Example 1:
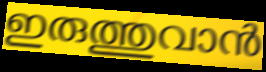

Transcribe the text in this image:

ഇരുത്തുവാൻ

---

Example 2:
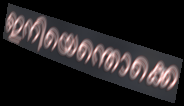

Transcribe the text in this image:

ഇനിയെന്തൊക്കെ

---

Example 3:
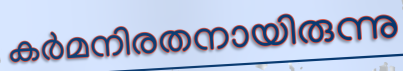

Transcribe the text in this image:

കർമനിരതനായിരുന്നു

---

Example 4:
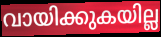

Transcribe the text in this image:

വായിക്കുകയില്ല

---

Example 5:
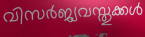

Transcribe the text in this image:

വിസർജ്യവസ്തുക്കൾ